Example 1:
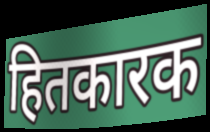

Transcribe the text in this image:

हितकारक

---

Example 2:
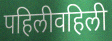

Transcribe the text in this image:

पहिलीवहिली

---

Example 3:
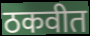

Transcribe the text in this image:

ठकवीत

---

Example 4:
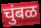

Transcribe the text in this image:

चुंबळ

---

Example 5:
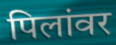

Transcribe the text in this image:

पिलांवर